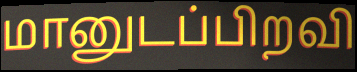
மானுடப்பிறவி